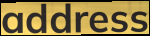
address